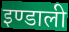
इण्डाली